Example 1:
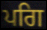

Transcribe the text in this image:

ਪਗਿ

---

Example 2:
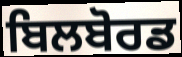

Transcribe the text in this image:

ਬਿਲਬੋਰਡ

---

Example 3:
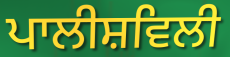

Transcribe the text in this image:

ਪਾਲੀਸ਼ਵਿਲੀ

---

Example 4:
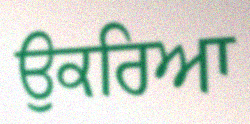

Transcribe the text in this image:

ਉਕਰਿਆ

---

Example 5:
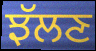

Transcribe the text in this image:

ਝੱਲਣ